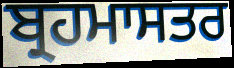
ਬ੍ਰਹਮਾਸਤਰ